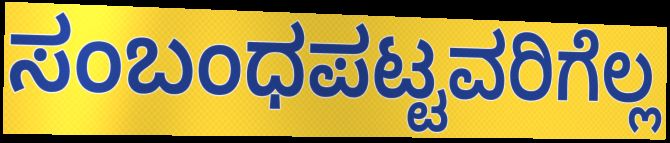
ಸಂಬಂಧಪಟ್ಟವರಿಗೆಲ್ಲ